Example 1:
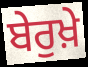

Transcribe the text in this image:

ਬੇਰੁਖ਼ੇ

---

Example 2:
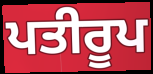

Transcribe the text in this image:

ਪਤੀਰੂਪ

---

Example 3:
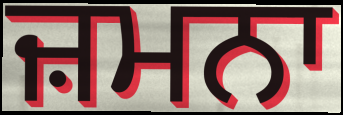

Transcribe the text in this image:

ਜ਼ਮਨਾ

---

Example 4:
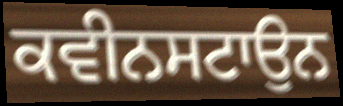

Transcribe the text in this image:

ਕਵੀਨਸਟਾਉਨ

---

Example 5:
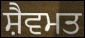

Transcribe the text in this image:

ਸ਼ੈਵਮਤ